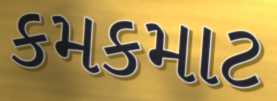
કમકમાટ